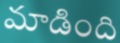
మాడింది